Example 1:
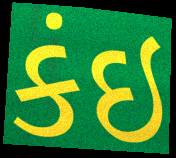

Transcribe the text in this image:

કંઇ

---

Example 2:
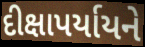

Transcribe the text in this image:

દીક્ષાપર્યાયને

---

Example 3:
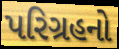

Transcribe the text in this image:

પરિગ્રહનો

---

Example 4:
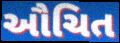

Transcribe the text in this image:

ઔચિત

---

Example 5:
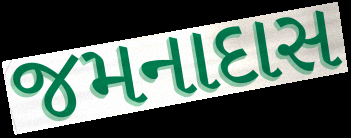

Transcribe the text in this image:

જમનાદાસ